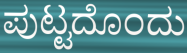
ಪುಟ್ಟದೊಂದು